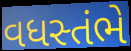
વધસ્તંભે